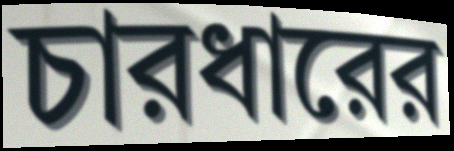
চারধারের